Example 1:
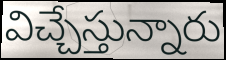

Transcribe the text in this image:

విచ్చేస్తున్నారు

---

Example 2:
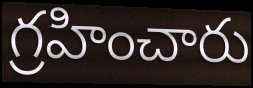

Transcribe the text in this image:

గ్రహించారు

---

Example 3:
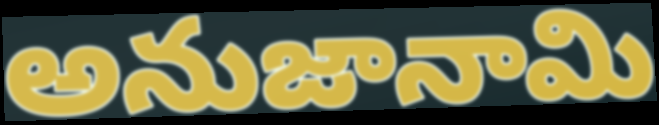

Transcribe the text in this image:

అనుజానామి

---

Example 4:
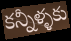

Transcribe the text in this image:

కన్నీళ్ళకు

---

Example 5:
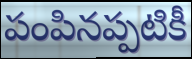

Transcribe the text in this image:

పంపినప్పటికీ